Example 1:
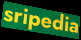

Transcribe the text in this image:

sripedia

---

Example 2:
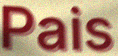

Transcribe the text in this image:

Pais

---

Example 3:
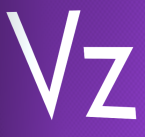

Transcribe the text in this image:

Vz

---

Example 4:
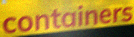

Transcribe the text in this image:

containers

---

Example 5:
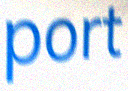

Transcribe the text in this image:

port